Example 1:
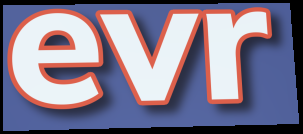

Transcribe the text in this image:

evr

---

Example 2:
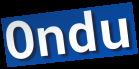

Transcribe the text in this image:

Ondu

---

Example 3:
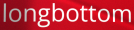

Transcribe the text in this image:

longbottom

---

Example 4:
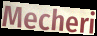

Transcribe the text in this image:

Mecheri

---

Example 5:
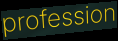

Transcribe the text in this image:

profession